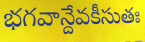
భగవాన్దేవకీసుతః